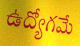
ఉద్యోగమే